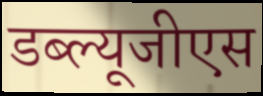
डब्ल्यूजीएस